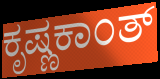
ಕೃಷ್ಣಕಾಂತ್